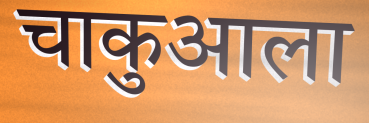
चाकुआला